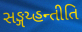
સઙ્ગય્હન્તીતિ